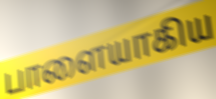
பாளையாகிய